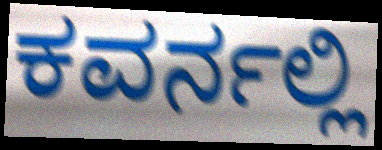
ಕವರ್ನಲ್ಲಿ